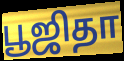
பூஜிதா